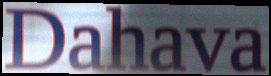
Dahava